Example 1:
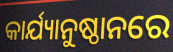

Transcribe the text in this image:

କାର୍ଯ୍ୟାନୁଷ୍ଠାନରେ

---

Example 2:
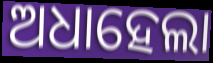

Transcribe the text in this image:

ଅଧାହେଲା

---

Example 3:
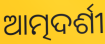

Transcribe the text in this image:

ଆତ୍ମଦର୍ଶୀ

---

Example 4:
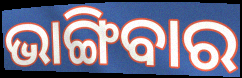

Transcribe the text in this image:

ଭାଙ୍ଗିବାର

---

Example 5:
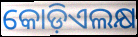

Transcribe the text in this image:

କୋଡ଼ିଏଲକ୍ଷ